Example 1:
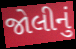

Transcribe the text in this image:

જોલીનું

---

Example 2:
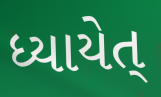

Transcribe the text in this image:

ધ્યાયેત્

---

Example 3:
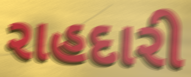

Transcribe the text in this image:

રાહદારી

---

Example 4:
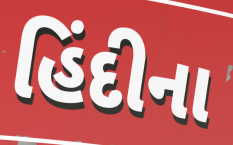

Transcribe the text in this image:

હિંદીના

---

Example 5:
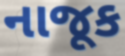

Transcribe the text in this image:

નાજૂક